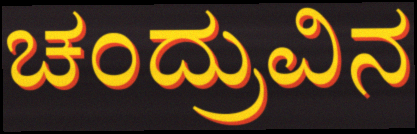
ಚಂದ್ರುವಿನ